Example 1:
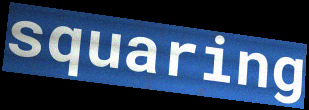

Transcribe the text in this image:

squaring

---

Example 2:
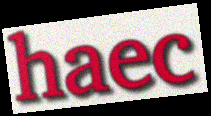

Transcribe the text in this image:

haec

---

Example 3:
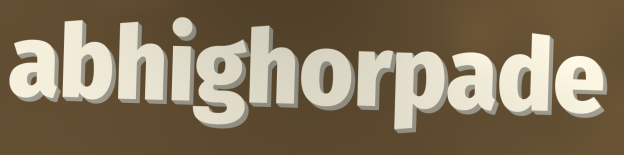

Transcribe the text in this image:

abhighorpade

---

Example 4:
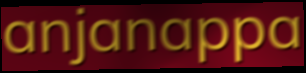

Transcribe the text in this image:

anjanappa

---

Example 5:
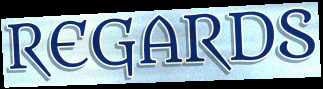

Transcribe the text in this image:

REGARDS